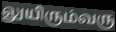
லுயிரும்வரு